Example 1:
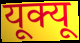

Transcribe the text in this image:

यूक्यू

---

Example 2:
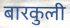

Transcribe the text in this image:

बारकुली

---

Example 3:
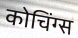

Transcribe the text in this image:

कोचिंग्स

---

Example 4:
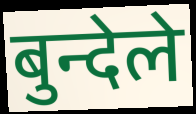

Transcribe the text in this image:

बुन्देले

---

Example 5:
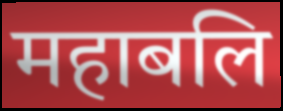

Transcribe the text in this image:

महाबलि